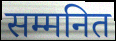
सम्मनित